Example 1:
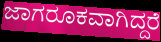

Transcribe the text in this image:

ಜಾಗರೂಕವಾಗಿದ್ದರೆ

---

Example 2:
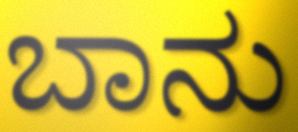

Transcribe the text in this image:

ಬಾನು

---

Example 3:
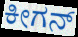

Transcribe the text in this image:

ಕೀಗನ್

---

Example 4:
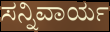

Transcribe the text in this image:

ಸನ್ನಿವಾರ್ಯ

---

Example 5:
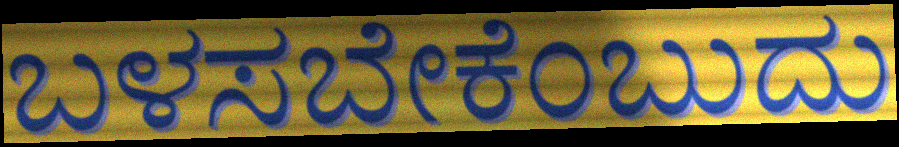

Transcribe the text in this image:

ಬಳಸಬೇಕೆಂಬುದು